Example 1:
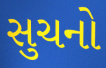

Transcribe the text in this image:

સુચનો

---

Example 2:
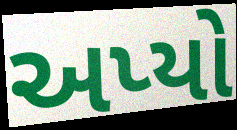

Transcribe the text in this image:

અપ્યો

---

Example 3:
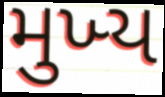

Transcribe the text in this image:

મુખ્‍ય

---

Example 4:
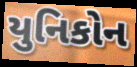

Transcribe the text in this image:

યુનિકોન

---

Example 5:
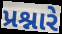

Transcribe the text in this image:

પ્રશ્નારે